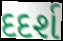
દદર્શ